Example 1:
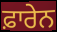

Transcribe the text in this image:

ਫ਼ਾਰੇਨ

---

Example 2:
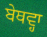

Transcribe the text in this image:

ਬੇਥਵ੍ਹਾ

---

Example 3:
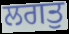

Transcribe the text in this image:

ਲਗਤੁ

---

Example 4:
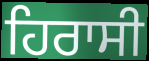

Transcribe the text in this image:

ਹਿਰਾਸੀ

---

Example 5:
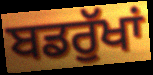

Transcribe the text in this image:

ਬਡਰੁੱਖਾਂ